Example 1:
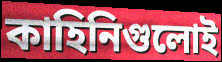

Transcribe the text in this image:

কাহিনিগুলোই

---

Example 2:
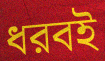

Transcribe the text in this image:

ধরবই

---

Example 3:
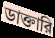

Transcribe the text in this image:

ডাক্তারি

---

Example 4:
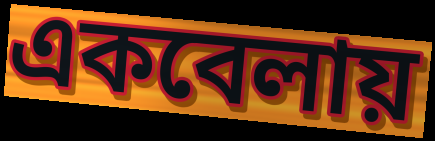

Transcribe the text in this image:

একবেলায়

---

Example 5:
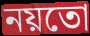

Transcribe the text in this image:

নয়তো